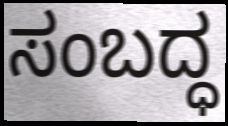
ಸಂಬದ್ಧ